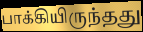
பாக்கியிருந்தது